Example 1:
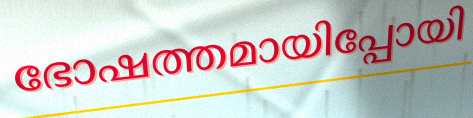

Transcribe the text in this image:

ഭോഷത്തമായിപ്പോയി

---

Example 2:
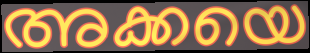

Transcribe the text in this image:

അക്കയെ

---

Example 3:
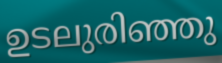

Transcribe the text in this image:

ഉടലുരിഞ്ഞു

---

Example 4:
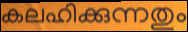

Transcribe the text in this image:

കലഹിക്കുന്നതും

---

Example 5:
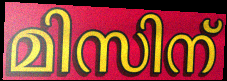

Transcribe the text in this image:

മിസിന്